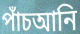
পাঁচআনি